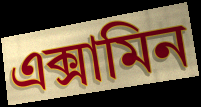
এক্সামিন